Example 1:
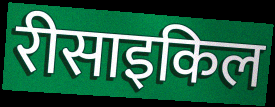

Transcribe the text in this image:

रीसाइकिल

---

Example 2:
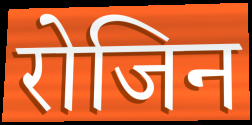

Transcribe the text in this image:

रोजिन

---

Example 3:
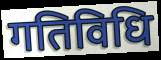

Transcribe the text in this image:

गतिविधि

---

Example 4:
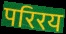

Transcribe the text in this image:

परिरय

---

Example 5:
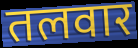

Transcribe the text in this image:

तलवार